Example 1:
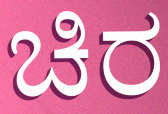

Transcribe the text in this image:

ಚಿರ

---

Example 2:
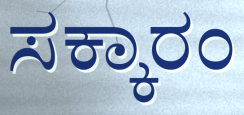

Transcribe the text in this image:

ಸಕ್ಕಾರಂ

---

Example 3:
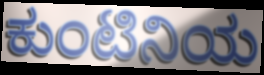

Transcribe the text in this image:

ಕುಂಟಿನಿಯ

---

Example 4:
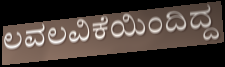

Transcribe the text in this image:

ಲವಲವಿಕೆಯಿಂದಿದ್ದ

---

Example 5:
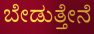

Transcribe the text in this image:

ಬೇಡುತ್ತೇನೆ